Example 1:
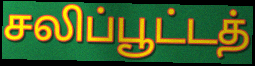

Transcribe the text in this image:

சலிப்பூட்டத்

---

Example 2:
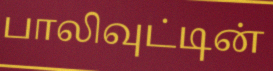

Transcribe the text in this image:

பாலிவுட்டின்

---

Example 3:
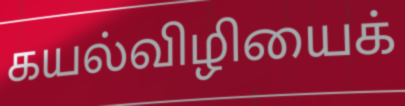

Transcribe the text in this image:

கயல்விழியைக்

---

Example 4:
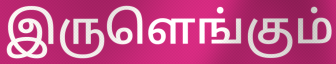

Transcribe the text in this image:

இருளெங்கும்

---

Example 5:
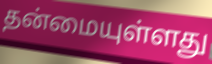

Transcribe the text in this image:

தன்மையுள்ளது